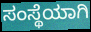
ಸಂಸ್ಥೆಯಾಗಿ